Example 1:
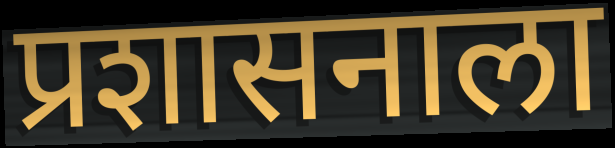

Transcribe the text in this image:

प्रशासनाला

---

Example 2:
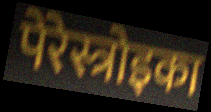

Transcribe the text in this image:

पेरेस्त्रोइका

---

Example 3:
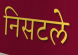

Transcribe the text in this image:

निसटले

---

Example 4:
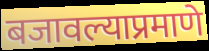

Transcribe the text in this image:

बजावल्याप्रमाणे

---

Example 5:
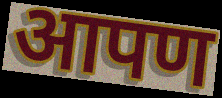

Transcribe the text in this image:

आपण